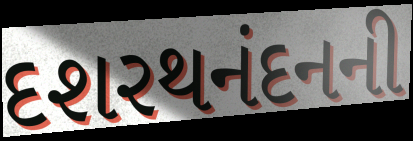
દશરથનંદનની